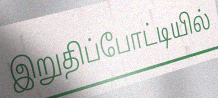
இறுதிப்போட்டியில்